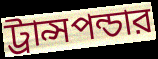
ট্রান্সপন্ডার